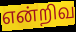
என்றிவ